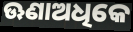
ଊଣାଅଧିକେ